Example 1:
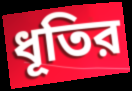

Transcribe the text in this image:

ধূতির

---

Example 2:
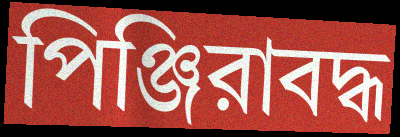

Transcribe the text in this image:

পিঞ্জিরাবদ্ধ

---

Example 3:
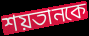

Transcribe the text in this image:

শয়তানকে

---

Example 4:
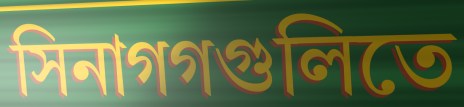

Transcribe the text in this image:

সিনাগগগুলিতে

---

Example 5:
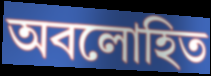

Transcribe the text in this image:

অবলোহিত